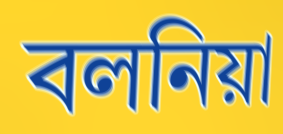
বলনিয়া